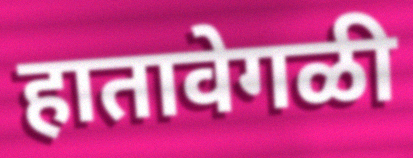
हातावेगळी